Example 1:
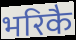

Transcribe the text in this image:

भरिकै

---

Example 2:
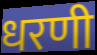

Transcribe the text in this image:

धरणी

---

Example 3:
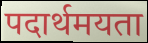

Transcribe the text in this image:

पदार्थमयता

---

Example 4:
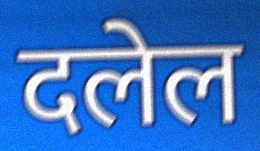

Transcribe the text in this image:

दलेल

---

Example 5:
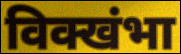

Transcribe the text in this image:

विक्खंभा